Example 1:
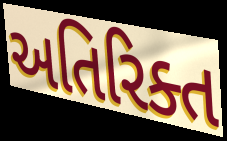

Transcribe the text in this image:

અતિરિક્ત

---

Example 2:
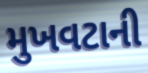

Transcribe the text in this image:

મુખવટાની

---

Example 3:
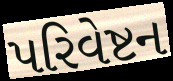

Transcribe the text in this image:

પરિવેષ્ટન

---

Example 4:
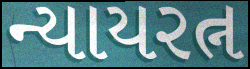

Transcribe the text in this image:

ન્યાયરત્ન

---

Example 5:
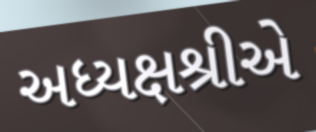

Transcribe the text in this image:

અધ્યક્ષશ્રીએ